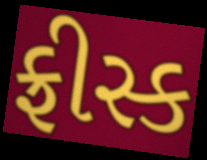
ફ્રીસ્ક